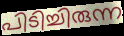
പിടിച്ചിരുന്ന